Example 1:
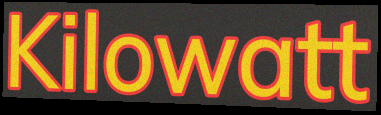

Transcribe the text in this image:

Kilowatt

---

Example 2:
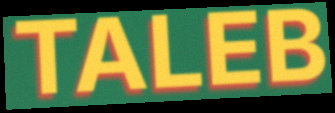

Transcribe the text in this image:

TALEB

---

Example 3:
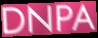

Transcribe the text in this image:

DNPA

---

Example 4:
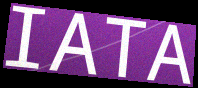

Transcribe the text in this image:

IATA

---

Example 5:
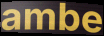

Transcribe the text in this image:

ambe